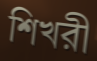
শিখরী